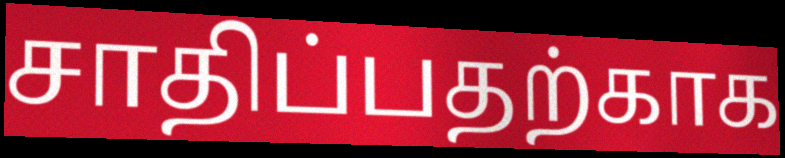
சாதிப்பதற்காக